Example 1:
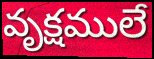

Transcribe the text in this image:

వృక్షములే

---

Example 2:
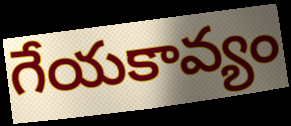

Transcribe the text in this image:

గేయకావ్యం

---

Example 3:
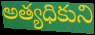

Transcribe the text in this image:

అత్యధికుని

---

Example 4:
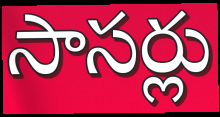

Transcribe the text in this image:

సాసర్లు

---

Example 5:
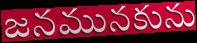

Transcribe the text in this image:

జనమునకును